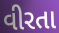
વીરતા